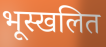
भूस्खलित